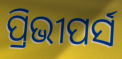
ପ୍ରିଭୀପର୍ସ